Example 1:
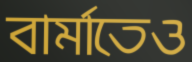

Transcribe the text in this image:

বার্মাতেও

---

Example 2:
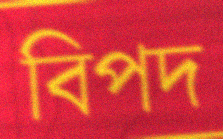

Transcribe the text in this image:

বিপদ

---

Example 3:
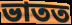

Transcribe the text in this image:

ভাতত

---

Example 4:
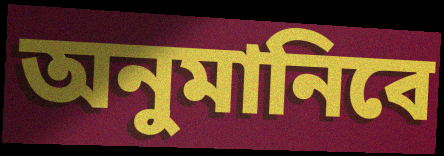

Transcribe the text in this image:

অনুমানিবে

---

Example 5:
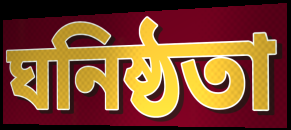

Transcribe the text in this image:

ঘনিষ্ঠতা